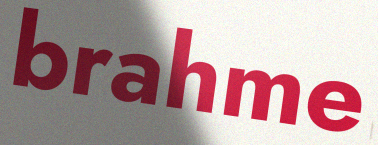
brahme